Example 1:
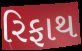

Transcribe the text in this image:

રિફાથ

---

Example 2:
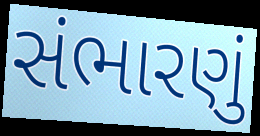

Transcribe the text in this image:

સંભારણું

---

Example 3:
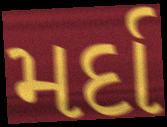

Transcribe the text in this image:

મર્દા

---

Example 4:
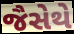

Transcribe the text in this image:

જૈસેથે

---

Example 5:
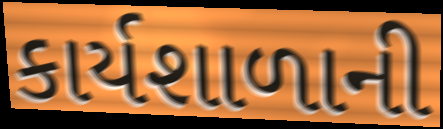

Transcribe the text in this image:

કાર્યશાળાની